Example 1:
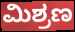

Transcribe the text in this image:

ಮಿಶ್ರಣ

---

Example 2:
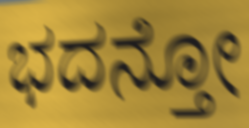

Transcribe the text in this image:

ಭದನ್ತೋ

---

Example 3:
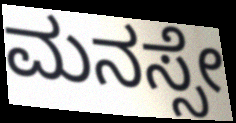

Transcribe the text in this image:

ಮನಸ್ಸೇ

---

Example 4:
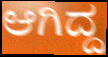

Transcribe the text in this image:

ಆಗಿದ್ದ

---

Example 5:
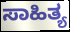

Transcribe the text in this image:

ಸಾಹಿತ್ಯ